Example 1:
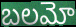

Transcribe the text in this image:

బలమో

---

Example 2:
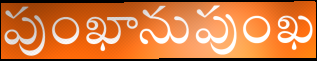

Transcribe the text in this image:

పుంఖానుపుంఖ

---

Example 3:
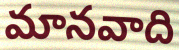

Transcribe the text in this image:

మానవాది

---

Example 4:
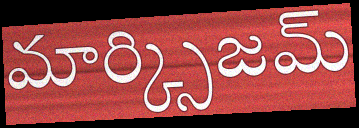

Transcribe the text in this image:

మార్క్సిజమ్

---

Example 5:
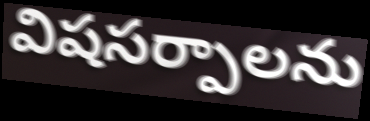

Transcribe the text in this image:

విషసర్పాలను